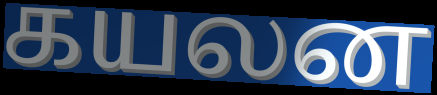
கயலன